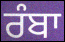
ਰੰਬਾ